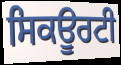
ਸਿਕਊਰਟੀ